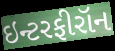
ઇન્ટરફીરૉન